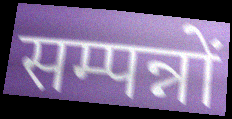
सम्पन्नों